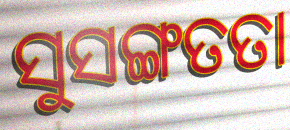
ସୁସଙ୍ଗତତା